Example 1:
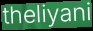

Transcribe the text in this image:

theliyani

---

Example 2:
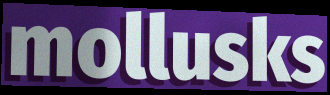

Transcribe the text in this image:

mollusks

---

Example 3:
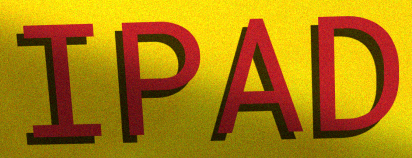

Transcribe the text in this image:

IPAD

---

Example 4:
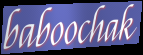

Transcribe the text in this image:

baboochak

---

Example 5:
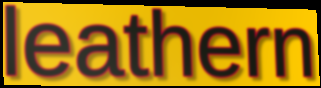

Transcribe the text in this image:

leathern